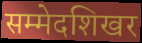
सम्मेदशिखर